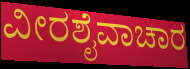
ವೀರಶೈವಾಚಾರ